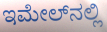
ಇಮೇಲ್‌ನಲ್ಲಿ